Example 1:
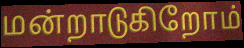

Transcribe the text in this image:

மன்றாடுகிறோம்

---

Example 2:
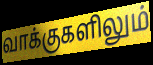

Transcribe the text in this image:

வாக்குகளிலும்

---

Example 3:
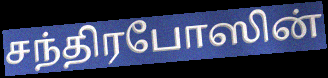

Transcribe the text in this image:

சந்திரபோஸின்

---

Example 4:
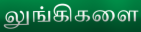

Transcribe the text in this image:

லுங்கிகளை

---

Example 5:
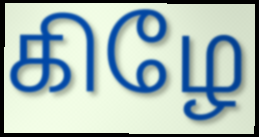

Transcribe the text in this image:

கிழே